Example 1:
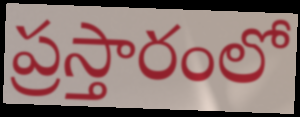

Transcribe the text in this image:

ప్రస్తారంలో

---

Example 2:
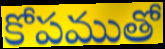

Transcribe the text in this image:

కోపముతో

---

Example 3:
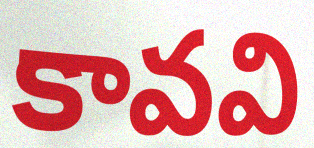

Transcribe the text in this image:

కావవి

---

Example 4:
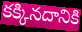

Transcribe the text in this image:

కక్కినదానికి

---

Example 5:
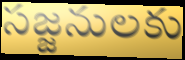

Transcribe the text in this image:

సజ్జనులకు